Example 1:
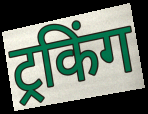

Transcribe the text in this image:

ट्रकिंग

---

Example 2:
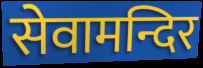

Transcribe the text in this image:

सेवामन्दिर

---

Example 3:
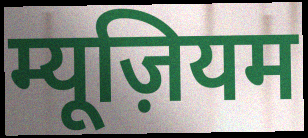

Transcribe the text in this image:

म्यूज़ियम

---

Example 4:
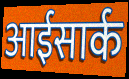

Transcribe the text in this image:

आईसार्क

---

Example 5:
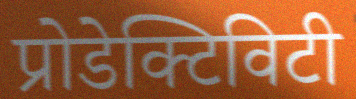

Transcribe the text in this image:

प्रोडेक्टिविटी